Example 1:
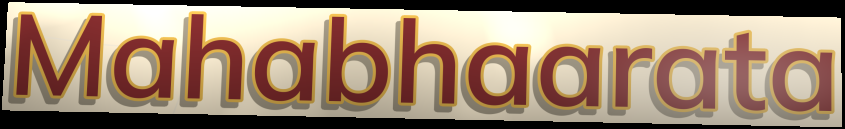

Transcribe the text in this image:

Mahabhaarata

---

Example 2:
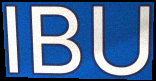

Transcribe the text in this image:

IBU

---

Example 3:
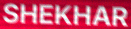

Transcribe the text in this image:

SHEKHAR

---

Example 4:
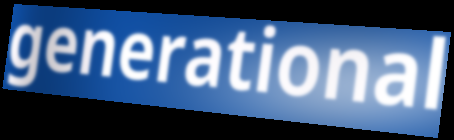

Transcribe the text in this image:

generational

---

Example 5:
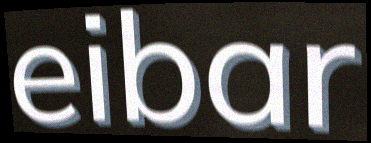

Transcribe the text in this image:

eibar